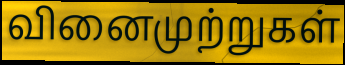
வினைமுற்றுகள்